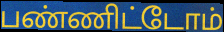
பண்ணிட்டோம்